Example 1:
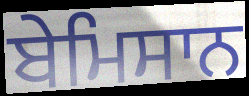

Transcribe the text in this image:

ਬੇਮਿਸਾਨ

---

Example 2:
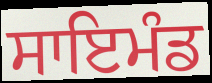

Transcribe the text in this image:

ਸਾਇਮੰਡ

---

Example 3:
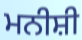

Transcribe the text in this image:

ਮਨੀਸ਼ੀ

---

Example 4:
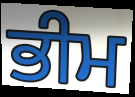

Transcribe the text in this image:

ਭੀਮ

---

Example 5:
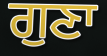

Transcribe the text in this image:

ਗੁਣਾ